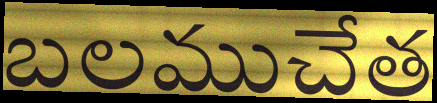
బలముచేత